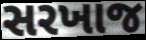
સરખાજ